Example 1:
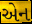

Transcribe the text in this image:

એન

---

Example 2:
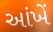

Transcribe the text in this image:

આંખેં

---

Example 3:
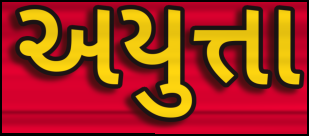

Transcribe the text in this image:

અયુત્તા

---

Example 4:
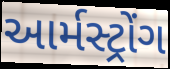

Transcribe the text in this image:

આર્મસ્ટ્રોંગ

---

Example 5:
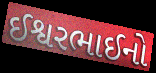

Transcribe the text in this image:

ઈશ્વરભાઈનો